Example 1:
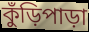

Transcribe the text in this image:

কুঁড়িপাড়া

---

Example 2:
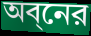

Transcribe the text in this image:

অব্নের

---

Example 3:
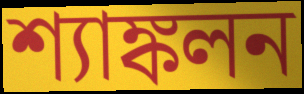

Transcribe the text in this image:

শ্যাঙ্কলন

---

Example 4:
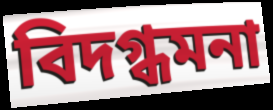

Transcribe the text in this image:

বিদগ্ধমনা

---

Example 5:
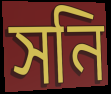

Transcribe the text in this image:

সনি